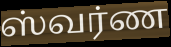
ஸ்வர்ண